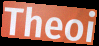
Theoi